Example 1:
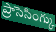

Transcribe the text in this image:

ప్రాసెసింగ్కు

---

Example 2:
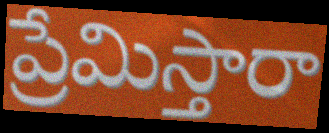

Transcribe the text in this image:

ప్రేమిస్తారా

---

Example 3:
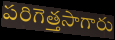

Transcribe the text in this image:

పరిగెత్తసాగారు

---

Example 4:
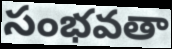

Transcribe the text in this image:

సంభవతా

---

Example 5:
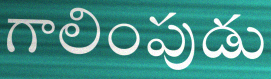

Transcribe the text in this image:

గాలింపుడు